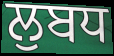
ਲੁਬਧ